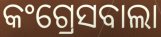
କଂଗ୍ରେସବାଲା